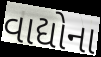
વાદ્યોના